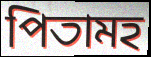
পিতামহ